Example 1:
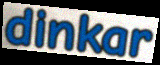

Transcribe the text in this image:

dinkar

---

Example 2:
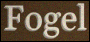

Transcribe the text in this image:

Fogel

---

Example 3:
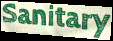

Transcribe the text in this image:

Sanitary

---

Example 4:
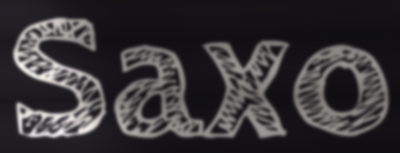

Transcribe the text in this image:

Saxo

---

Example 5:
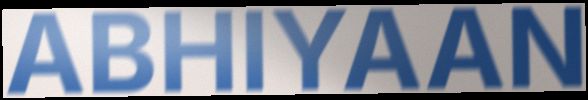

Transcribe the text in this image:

ABHIYAAN